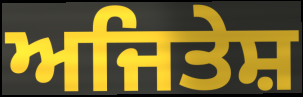
ਅਜਿਤੇਸ਼